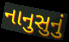
નાનુસુનું